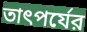
তাৎপর্যের